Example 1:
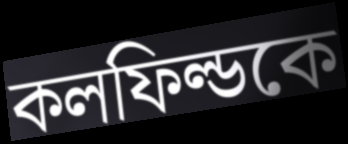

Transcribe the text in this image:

কলফিল্ডকে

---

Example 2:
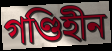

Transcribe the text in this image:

গণ্ডিহীন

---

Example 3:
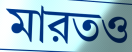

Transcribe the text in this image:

মারতও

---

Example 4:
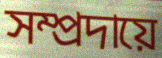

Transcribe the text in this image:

সম্প্রদায়ে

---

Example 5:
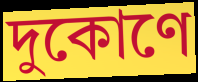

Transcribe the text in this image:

দুকোণে